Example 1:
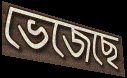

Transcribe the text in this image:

ভেজেছে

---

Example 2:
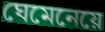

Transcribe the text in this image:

ঘেমেনেয়ে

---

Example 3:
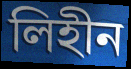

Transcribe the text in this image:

লিহীন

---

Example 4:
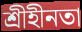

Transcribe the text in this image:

শ্রীহীনতা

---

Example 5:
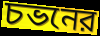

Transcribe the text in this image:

চভনের